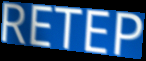
RETEP